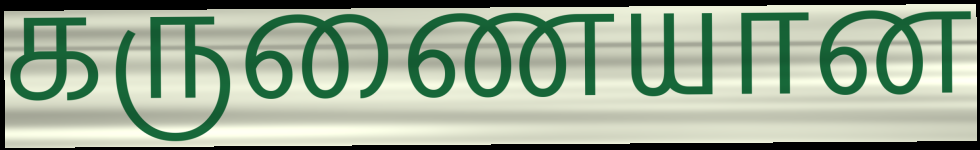
கருணையான